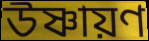
উষ্ণায়ণ